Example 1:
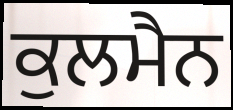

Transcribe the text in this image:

ਕੁਲਮੈਨ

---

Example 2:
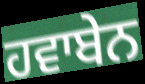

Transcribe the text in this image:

ਹਵਾਬੇਨ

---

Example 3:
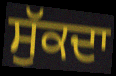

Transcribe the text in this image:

ਸੁੱਕਦਾ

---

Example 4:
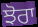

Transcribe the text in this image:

ਝੋਰਾ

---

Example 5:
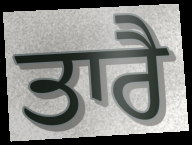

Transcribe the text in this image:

ਤਾਰੈ